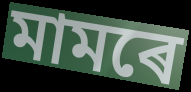
মামৰে